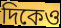
দিকেও